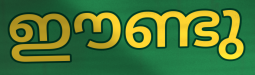
ഈണ്ടു